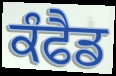
ਕੰਫੈਡ